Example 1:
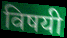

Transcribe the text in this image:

विषयी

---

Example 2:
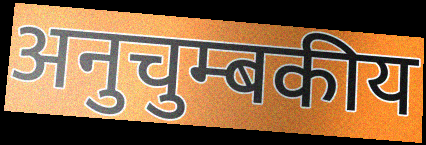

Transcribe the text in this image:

अनुचुम्बकीय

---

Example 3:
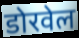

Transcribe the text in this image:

डोरवेल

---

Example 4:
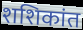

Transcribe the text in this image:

शशिकांत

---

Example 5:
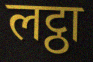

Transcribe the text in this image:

लट्ठा